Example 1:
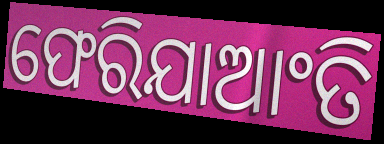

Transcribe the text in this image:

ଫେରିଯାଆଂତି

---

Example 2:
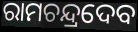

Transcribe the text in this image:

ରାମଚନ୍ଦ୍ରଦେବ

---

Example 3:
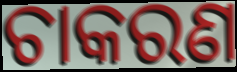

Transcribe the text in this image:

ଚାକରଣ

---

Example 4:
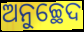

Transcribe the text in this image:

ଅନୁଚ୍ଛେଦ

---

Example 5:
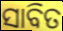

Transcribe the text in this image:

ସାବିତ